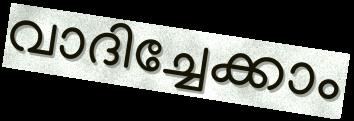
വാദിച്ചേക്കാം